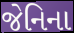
જેનિના